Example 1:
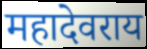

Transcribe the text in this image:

महादेवराय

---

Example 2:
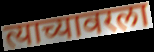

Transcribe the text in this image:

त्याच्यावरला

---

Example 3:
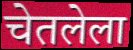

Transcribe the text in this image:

चेतलेला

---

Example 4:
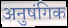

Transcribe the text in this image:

अनुषंगिक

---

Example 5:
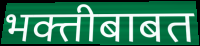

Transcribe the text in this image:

भक्तीबाबत